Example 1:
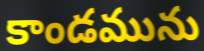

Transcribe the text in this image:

కాండమును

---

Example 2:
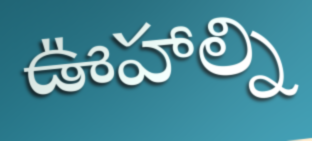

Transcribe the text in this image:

ఊహాల్ని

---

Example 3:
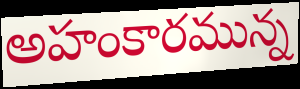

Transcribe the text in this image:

అహంకారమున్న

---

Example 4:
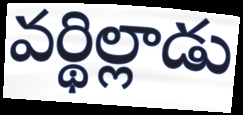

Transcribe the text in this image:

వర్థిల్లాడు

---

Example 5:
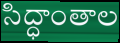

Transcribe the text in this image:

సిద్ధాంతాల